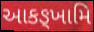
આકઙ્ખામિ